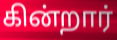
கின்றார்